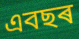
এবছৰ